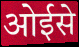
ओईसे